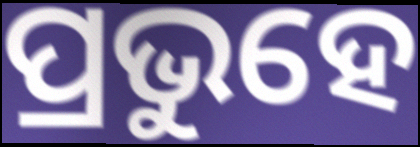
ପ୍ରଭୁହେ